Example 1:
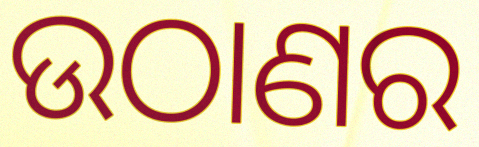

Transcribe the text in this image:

ଉଠାଣର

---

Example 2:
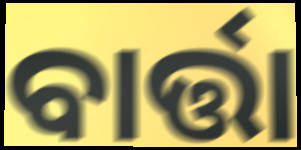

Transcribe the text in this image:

ବାର୍ତ୍ତା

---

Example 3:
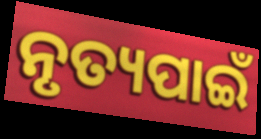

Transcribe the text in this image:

ନୃତ୍ୟପାଇଁ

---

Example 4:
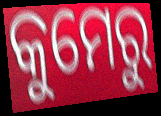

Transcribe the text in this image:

କୁମେରୁ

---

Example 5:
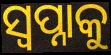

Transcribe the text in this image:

ସ୍ୱପ୍ନାକୁ